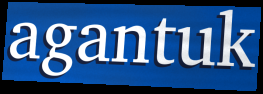
agantuk